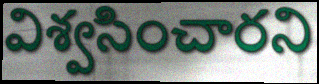
విశ్వసించారని